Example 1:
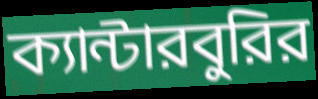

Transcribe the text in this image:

ক্যান্টারবুরির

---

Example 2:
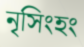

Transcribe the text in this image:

নৃসিংহং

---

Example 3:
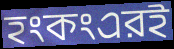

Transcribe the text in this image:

হংকংএরই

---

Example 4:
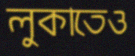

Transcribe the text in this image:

লুকাতেও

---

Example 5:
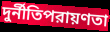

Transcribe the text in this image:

দুর্নীতিপরায়ণতা